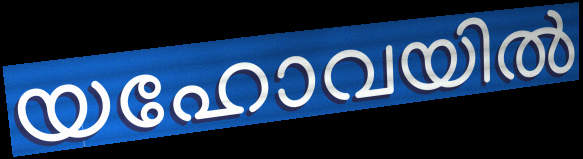
യഹോവയിൽ